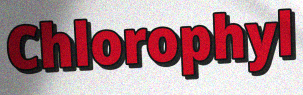
Chlorophyl